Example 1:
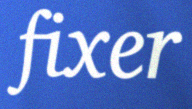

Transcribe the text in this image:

fixer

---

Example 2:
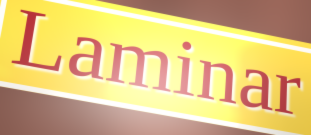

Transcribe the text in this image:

Laminar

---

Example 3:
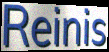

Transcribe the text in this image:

Reinis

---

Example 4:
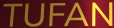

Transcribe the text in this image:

TUFAN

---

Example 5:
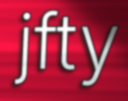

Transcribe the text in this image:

jfty